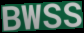
BWSS